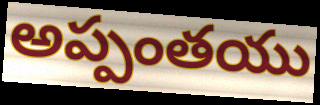
అప్పంతయు